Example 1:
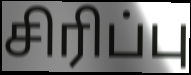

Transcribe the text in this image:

சிரிப்பு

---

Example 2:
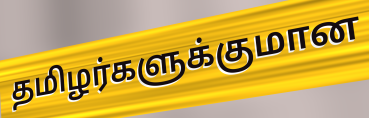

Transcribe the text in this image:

தமிழர்களுக்குமான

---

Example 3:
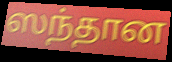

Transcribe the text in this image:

ஸந்தான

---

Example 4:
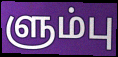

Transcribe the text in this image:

ளும்பு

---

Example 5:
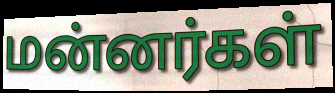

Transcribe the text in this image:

மன்னர்கள்